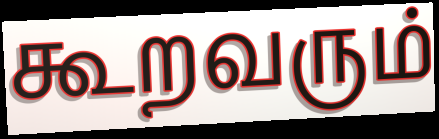
கூறவரும்